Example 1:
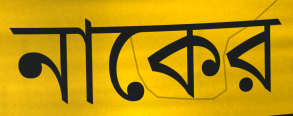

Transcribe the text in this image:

নাকের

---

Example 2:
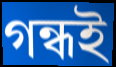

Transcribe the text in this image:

গন্ধই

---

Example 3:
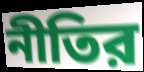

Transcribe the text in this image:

নীতির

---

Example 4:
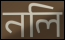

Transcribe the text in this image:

নলি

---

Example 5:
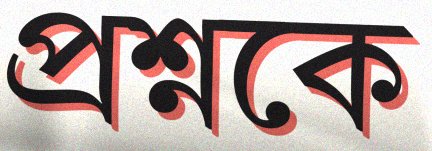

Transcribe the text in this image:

প্রশ্নকে